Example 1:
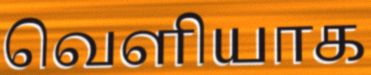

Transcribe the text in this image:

வெளியாக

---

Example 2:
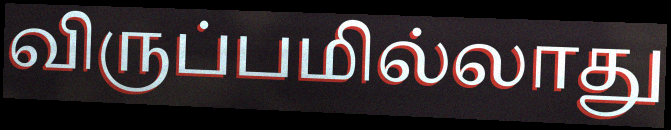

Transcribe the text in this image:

விருப்பமில்லாது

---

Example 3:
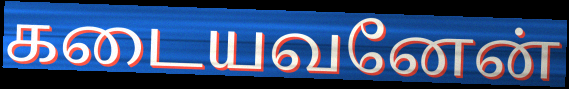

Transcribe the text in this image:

கடையவனேன்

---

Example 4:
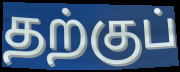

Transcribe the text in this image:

தற்குப்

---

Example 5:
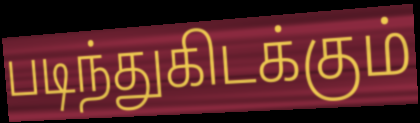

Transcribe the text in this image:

படிந்துகிடக்கும்